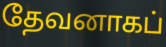
தேவனாகப்